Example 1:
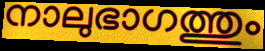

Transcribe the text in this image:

നാലുഭാഗത്തും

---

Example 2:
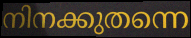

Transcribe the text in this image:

നിനക്കുതന്നെ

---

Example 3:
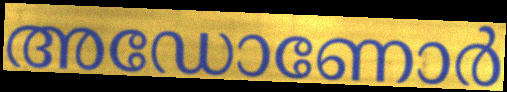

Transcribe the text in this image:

അഡോണോർ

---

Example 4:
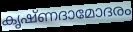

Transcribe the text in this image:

കൃഷ്ണദാമോദരം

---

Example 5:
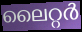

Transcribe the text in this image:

ലൈറ്റർ